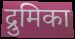
द्रुमिका